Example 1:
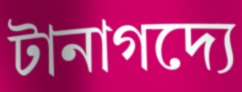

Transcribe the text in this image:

টানাগদ্যে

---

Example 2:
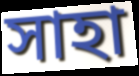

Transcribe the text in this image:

সাহা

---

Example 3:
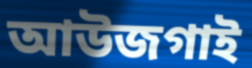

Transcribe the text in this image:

আউজগাই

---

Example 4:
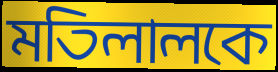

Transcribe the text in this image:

মতিলালকে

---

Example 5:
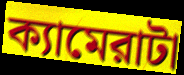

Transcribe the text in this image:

ক্যামেরাটা